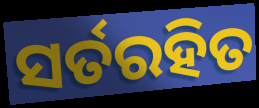
ସର୍ତରହିତ